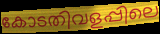
കോടതിവളപ്പിലെ